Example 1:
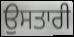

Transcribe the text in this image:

ਉਸਤਾਰੀ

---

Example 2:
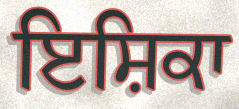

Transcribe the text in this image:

ਇਸ਼ਿਕਾ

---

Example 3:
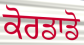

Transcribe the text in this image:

ਕੋਰਡਾਡੋ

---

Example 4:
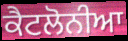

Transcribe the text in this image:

ਕੈਟਲੋਨੀਆ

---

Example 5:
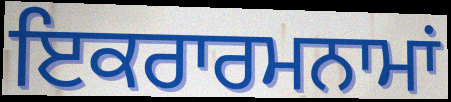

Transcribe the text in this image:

ਇਕਰਾਰਮਨਾਮਾਂ